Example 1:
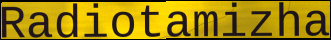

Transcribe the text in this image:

Radiotamizha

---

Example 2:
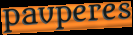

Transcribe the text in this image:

pauperes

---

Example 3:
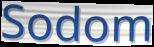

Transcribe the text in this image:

Sodom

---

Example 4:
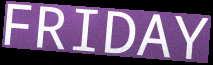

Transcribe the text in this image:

FRIDAY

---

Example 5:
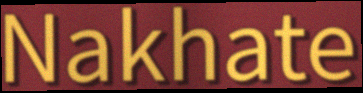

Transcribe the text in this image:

Nakhate